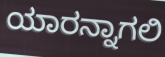
ಯಾರನ್ನಾಗಲಿ